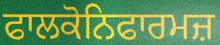
ਫਾਲਕੋਨਿਫਾਰਮਜ਼